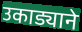
उकाड्याने